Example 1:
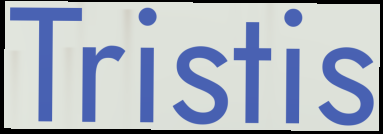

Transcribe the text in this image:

Tristis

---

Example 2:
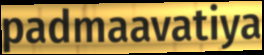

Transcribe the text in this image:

padmaavatiya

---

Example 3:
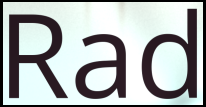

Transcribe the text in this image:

Rad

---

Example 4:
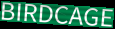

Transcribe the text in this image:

BIRDCAGE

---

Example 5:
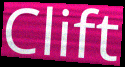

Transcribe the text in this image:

Clift